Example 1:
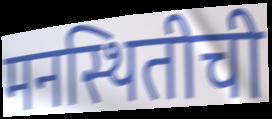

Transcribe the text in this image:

मनस्थितीची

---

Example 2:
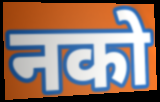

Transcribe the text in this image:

नको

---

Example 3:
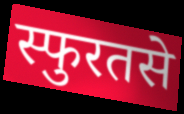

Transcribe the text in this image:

स्फुरतसे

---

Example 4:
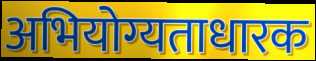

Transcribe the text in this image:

अभियोग्यताधारक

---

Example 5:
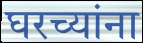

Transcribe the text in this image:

घरच्‍यांना